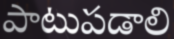
పాటుపడాలి